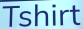
Tshirt